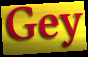
Gey